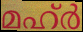
മഹ്ർ